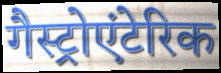
गैस्ट्रोएंटेरिक